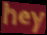
hey